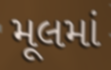
મૂલમાં